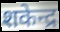
शकेन्द्र